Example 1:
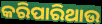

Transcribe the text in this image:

କରିପାରିଥାଉ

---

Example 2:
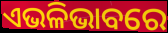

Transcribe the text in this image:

ଏଭଳିଭାବରେ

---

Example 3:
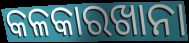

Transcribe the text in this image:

କଳକାରଖାନା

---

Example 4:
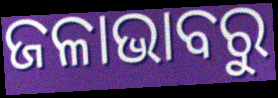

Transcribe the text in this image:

ଜଳାଭାବରୁ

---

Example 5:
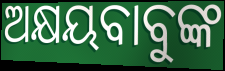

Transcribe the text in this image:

ଅକ୍ଷୟବାବୁଙ୍କ